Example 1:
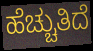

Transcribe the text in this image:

ಹೆಚ್ಚುತಿದೆ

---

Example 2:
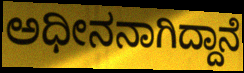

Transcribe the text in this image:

ಅಧೀನನಾಗಿದ್ದಾನೆ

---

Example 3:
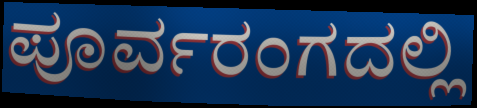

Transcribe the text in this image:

ಪೂರ್ವರಂಗದಲ್ಲಿ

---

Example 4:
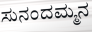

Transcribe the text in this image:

ಸುನಂದಮ್ಮನ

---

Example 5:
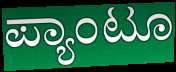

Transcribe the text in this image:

ಪ್ಯಾಂಟೂ